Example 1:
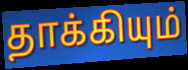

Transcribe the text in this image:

தாக்கியும்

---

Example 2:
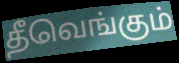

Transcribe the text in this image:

தீவெங்கும்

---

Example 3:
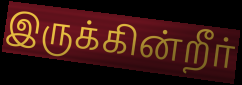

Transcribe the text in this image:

இருக்கின்றீர்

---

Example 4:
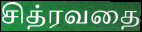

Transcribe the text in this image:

சித்ரவதை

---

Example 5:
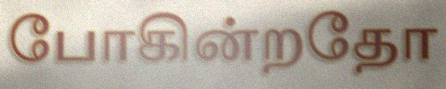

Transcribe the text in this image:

போகின்றதோ